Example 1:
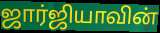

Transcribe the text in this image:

ஜார்ஜியாவின்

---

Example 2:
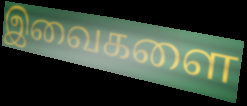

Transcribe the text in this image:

இவைகளை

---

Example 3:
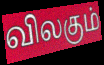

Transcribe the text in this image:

விலகும்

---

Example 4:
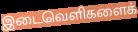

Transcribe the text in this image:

இடைவெளிகளைக்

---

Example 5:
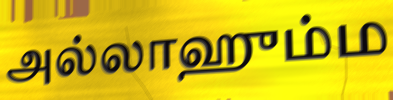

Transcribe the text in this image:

அல்லாஹும்ம